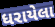
ધરાયેલા